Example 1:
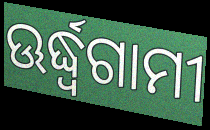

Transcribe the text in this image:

ଊର୍ଦ୍ଧ୍ଵଗାମୀ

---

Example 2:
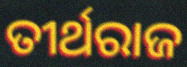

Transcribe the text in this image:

ତୀର୍ଥରାଜ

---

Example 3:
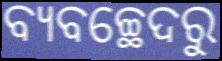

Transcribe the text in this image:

ବ୍ୟବଚ୍ଛେଦରୁ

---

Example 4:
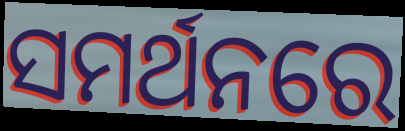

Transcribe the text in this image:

ସମର୍ଥନରେ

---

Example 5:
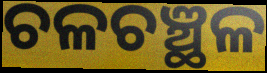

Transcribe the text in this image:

ଚଳଚଞ୍ଛଳ